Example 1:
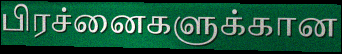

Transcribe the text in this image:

பிரச்னைகளுக்கான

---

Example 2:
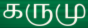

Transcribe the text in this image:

கருமு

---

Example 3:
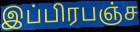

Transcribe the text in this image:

இப்பிரபஞ்ச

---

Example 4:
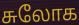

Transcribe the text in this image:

சுலோக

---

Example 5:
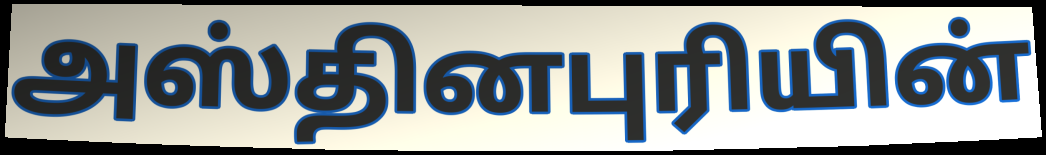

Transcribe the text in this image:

அஸ்தினபுரியின்